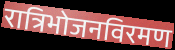
रात्रिभोजनविरमण